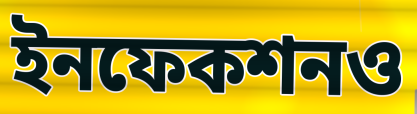
ইনফেকশনও